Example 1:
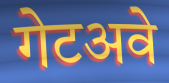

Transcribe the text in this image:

गेटअवे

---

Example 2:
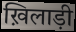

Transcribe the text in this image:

ख़िलाड़ी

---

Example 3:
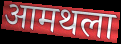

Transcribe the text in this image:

आमथला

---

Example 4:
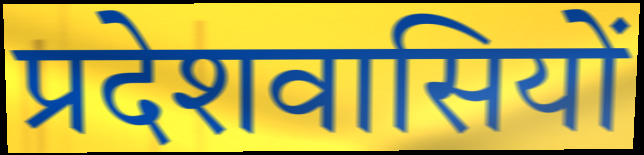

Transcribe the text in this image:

प्रदेशवासियों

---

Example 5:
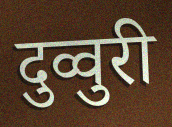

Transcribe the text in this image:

दुव्वुरी